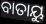
ବାତାୟୁ